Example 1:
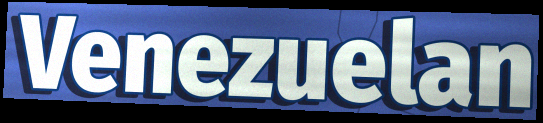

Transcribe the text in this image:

Venezuelan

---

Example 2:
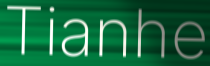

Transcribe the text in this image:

Tianhe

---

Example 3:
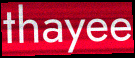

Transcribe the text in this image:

thayee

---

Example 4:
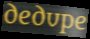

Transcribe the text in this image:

dedupe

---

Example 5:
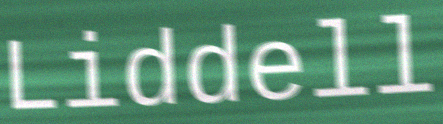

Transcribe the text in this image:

Liddell